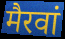
मैरवां